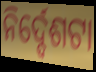
ନିର୍ଦ୍ଦେଶଟା